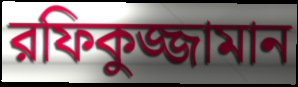
রফিকুজ্জামান